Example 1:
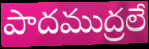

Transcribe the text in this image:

పాదముద్రలే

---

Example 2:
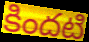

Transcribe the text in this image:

కిందటి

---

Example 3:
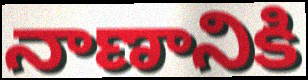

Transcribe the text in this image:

నాణానికి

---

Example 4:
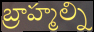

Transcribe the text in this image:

బ్రాహ్మల్ని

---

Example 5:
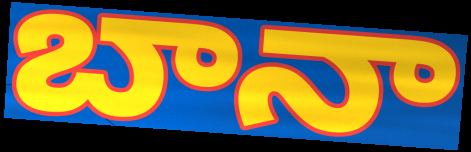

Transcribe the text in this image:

బానా